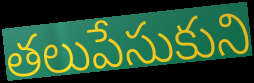
తలుపేసుకుని